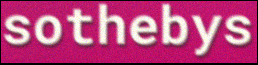
sothebys